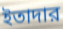
ইতাদার